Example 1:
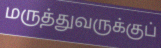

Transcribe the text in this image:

மருத்துவருக்குப்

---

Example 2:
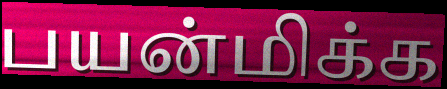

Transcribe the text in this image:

பயன்மிக்க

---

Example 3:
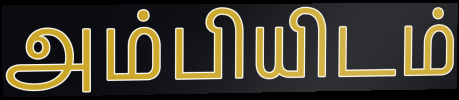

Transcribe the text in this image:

அம்பியிடம்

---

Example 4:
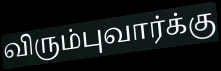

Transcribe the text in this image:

விரும்புவார்க்கு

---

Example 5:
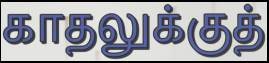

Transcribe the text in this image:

காதலுக்குத்